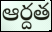
ఆర్దత